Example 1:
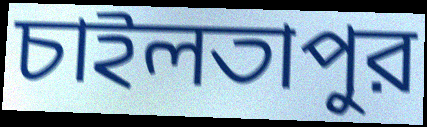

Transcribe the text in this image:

চাইলতাপুর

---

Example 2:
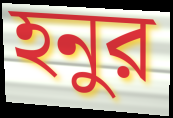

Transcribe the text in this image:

হনুর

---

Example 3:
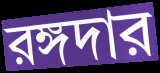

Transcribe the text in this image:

রঙ্গদার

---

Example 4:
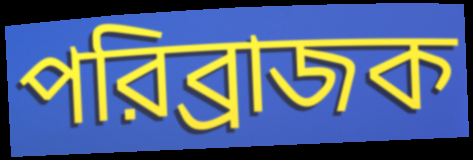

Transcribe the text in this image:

পরিব্রাজক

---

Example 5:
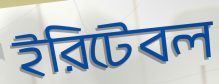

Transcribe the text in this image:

ইরিটেবল